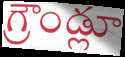
గ్రౌండ్లూ